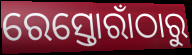
ରେସ୍ତୋରାଁଠାରୁ